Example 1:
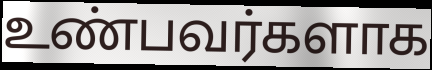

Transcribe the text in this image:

உண்பவர்களாக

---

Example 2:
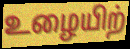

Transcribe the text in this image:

உழையிற்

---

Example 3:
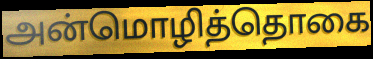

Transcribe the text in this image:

அன்மொழித்தொகை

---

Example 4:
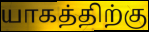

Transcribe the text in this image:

யாகத்திற்கு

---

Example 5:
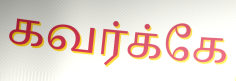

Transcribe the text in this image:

கவர்க்கே